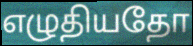
எழுதியதோ